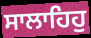
ਸਾਲਾਹਿਹੁ